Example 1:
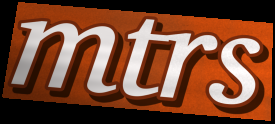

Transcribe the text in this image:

mtrs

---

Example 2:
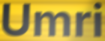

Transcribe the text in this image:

Umri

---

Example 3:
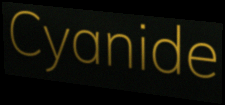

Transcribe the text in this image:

Cyanide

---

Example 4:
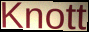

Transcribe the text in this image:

Knott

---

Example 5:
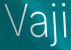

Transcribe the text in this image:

Vaji